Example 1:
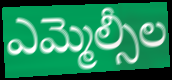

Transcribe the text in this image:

ఎమ్మెల్సీల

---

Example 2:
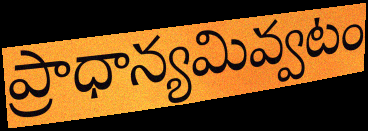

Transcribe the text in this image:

ప్రాధాన్యమివ్వటం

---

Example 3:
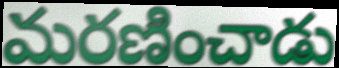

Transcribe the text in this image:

మరణించాడు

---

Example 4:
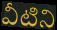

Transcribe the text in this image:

వీటిని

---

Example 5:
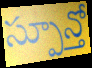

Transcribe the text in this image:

స్పూన్తో